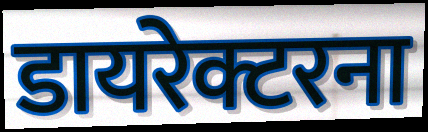
डायरेक्टरना